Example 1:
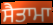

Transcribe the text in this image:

ਸੈਤਾਮਾ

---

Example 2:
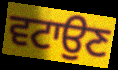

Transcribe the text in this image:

ਵਟਾਉਣ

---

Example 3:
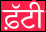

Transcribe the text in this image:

ਫ਼ੱਟੀ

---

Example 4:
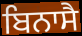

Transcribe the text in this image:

ਬਿਨਾਸੈ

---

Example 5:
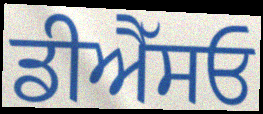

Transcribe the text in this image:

ਡੀਐੱਸਓ